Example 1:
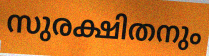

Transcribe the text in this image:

സുരക്ഷിതനും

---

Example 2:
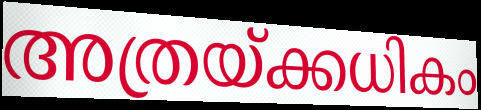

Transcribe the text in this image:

അത്രയ്ക്കധികം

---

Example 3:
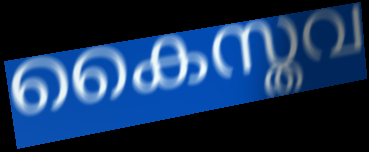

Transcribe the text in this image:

കൈസ്തവ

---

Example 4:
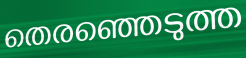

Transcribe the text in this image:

തെരഞ്ഞെടുത്ത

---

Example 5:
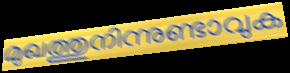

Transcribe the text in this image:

മുഖത്തുനിന്നുണ്ടാവുക